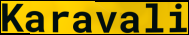
Karavali